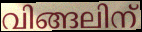
വിങ്ങലിന്